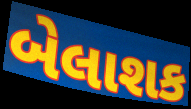
બેલાશક